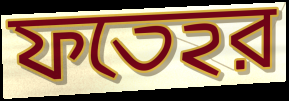
ফতেহর